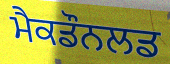
ਮੈਕਡੌਨਲਡ